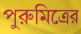
পুরুমিত্রের